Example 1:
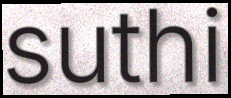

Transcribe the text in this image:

suthi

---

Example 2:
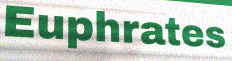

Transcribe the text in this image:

Euphrates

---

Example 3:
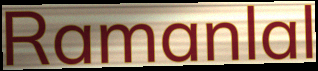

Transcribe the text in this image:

Ramanlal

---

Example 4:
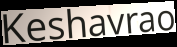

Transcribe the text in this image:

Keshavrao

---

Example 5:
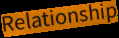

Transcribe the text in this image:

Relationship